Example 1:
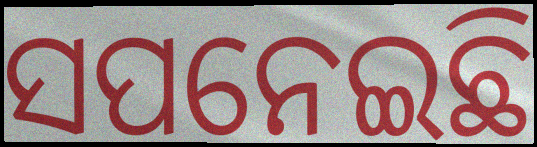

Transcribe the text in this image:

ସପନେଇଛି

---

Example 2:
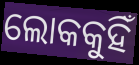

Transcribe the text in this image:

ଲୋକକୁହିଁ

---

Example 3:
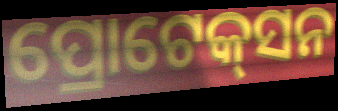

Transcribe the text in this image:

ପ୍ରୋଟେକ୍‌ସନ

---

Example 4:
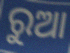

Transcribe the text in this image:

ରୁଆ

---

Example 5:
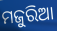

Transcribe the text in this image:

ମଜୁରିଆ